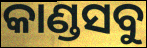
କାଣ୍ଡସବୁ